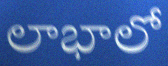
లాభాలో